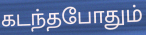
கடந்தபோதும்